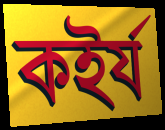
কইর্য